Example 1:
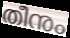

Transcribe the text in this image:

തീനും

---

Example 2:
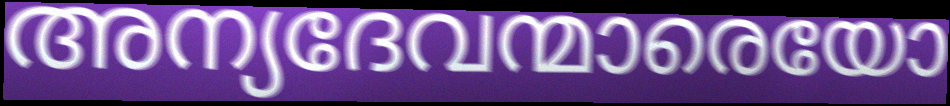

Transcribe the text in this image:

അന്യദേവന്മാരെയോ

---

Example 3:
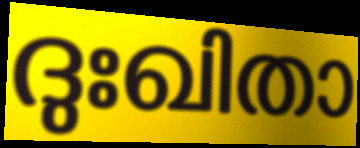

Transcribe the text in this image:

ദുഃഖിതാ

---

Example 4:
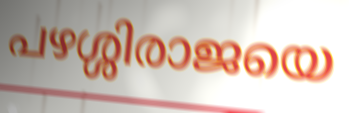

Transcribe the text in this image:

പഴശ്ശിരാജയെ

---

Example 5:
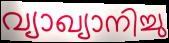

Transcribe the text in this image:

വ്യാഖ്യാനിച്ചു